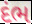
દંભ